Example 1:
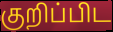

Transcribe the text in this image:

குறிப்பிட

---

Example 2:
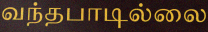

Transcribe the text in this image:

வந்தபாடில்லை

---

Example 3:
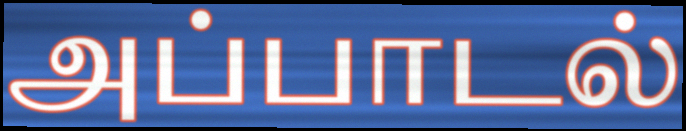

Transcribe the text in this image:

அப்பாடல்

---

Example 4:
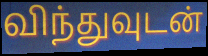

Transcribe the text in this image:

விந்துவுடன்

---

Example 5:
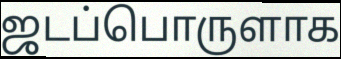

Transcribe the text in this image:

ஜடப்பொருளாக